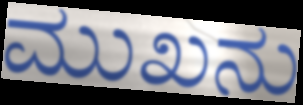
ಮುಖನು